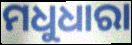
ମଧୁଧାରା